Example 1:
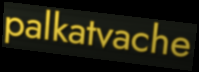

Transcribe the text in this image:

palkatvache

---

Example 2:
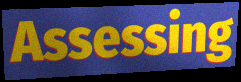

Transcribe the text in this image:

Assessing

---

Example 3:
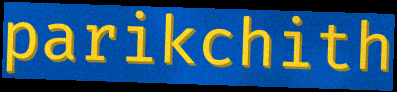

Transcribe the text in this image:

parikchith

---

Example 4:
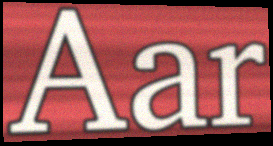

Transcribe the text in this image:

Aar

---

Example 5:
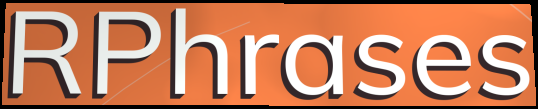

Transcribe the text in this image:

RPhrases